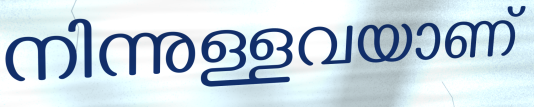
നിന്നുള്ളവയാണ്